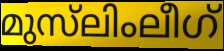
മുസ്‌ലിംലീഗ്